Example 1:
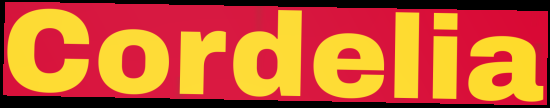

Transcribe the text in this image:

Cordelia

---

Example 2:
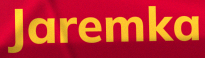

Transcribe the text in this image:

Jaremka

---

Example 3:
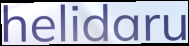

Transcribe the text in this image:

helidaru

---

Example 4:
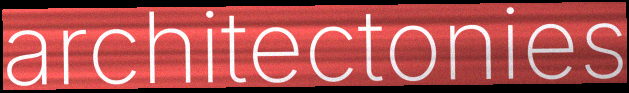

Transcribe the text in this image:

architectonies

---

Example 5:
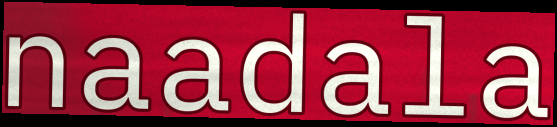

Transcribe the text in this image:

naadala